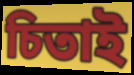
চিতাই